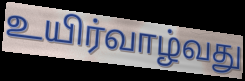
உயிர்வாழ்வது